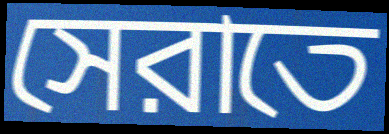
সেরাতে